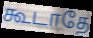
கூடாதே